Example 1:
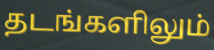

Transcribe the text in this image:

தடங்களிலும்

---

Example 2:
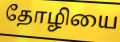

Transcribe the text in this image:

தோழியை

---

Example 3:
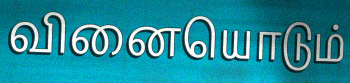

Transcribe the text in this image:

வினையொடும்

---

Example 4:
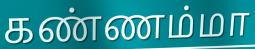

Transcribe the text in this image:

கண்ணம்மா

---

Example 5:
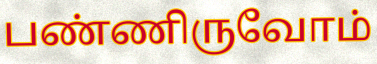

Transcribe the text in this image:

பண்ணிருவோம்